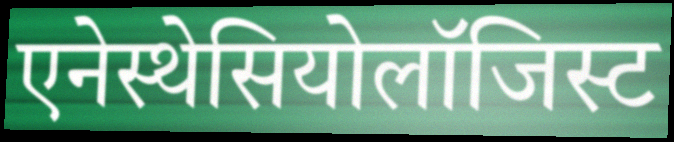
एनेस्थेसियोलॉजिस्ट